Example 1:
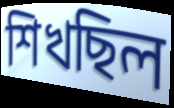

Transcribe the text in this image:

শিখছিল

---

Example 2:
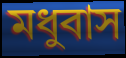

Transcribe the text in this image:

মধুবাস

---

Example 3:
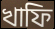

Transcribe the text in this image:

খাফি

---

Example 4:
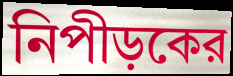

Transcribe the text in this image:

নিপীড়কের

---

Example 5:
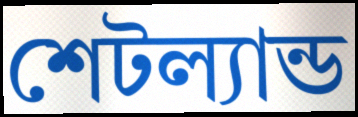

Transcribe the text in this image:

শেটল্যান্ড